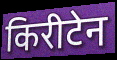
किरीटेन